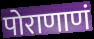
पोराणाणं